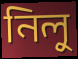
নিলু